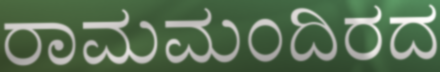
ರಾಮಮಂದಿರದ